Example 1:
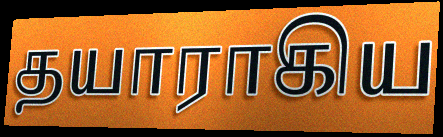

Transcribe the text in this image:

தயாராகிய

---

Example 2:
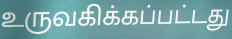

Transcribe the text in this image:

உருவகிக்கப்பட்டது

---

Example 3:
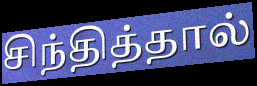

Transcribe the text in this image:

சிந்தித்தால்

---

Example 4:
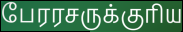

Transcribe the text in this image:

பேரரசருக்குரிய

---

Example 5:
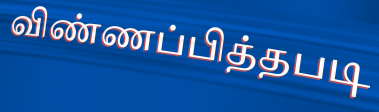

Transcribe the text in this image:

விண்ணப்பித்தபடி